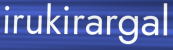
irukirargal